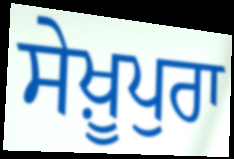
ਸੇਖ਼ੂਪੁਰਾ